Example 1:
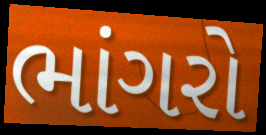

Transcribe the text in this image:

ભાંગરો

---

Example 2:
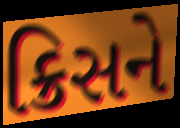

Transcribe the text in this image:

ક્રિસને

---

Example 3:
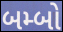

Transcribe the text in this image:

બમ્બો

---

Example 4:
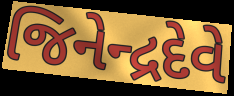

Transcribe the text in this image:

જિનેન્દ્રદેવે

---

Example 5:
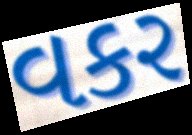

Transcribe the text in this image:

વકર